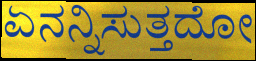
ಏನನ್ನಿಸುತ್ತದೋ